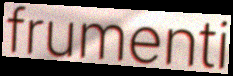
frumenti